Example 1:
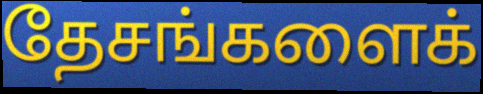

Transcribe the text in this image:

தேசங்களைக்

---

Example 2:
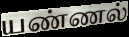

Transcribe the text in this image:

யண்ணல்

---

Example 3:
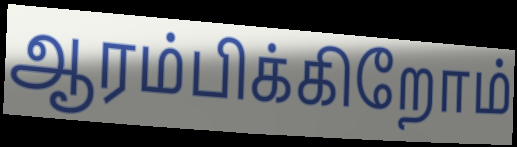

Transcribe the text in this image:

ஆரம்பிக்கிறோம்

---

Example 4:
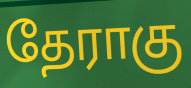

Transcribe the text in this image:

தேராகு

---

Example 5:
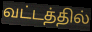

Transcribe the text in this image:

வட்டத்தில்